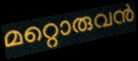
മറ്റൊരുവൻ